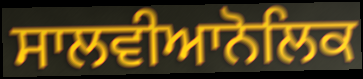
ਸਾਲਵੀਆਨੋਲਿਕ